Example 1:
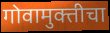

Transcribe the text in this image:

गोवामुक्तीचा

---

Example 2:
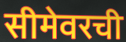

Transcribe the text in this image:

सीमेवरची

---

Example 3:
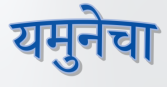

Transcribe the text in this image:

यमुनेचा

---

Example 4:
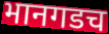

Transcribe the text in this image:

भानगडच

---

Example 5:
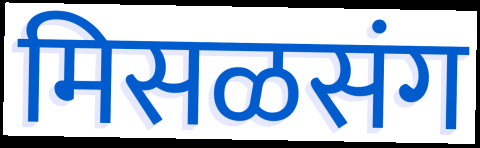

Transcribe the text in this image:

मिसळसंग